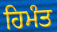
ਹਿਮੰਤ